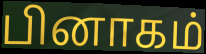
பினாகம்